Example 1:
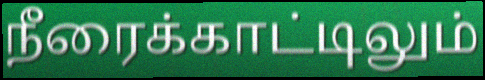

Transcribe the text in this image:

நீரைக்காட்டிலும்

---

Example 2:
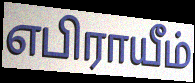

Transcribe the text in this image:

எபிராயீம்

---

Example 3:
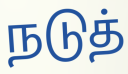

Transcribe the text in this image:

நடுத்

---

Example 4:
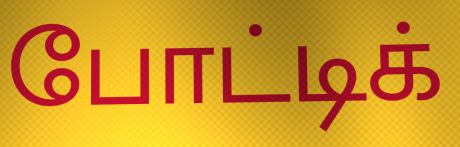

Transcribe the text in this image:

போட்டிக்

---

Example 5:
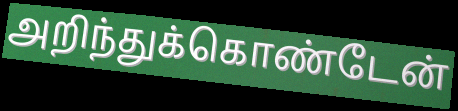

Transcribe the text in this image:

அறிந்துக்கொண்டேன்